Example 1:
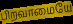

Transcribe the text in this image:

பிறவாமையே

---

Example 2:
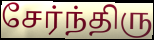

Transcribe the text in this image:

சேர்ந்திரு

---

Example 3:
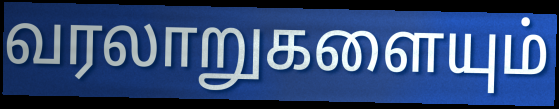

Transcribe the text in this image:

வரலாறுகளையும்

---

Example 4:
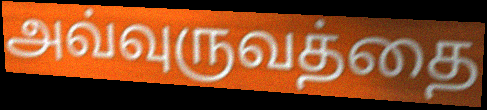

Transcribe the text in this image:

அவ்வுருவத்தை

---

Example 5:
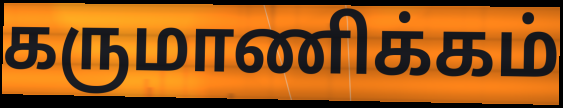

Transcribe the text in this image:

கருமாணிக்கம்